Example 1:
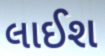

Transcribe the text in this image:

લાઈશ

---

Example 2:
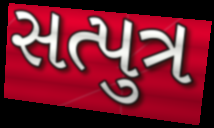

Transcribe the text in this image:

સત્પુત્ર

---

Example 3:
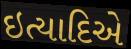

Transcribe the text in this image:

ઇત્યાદિએ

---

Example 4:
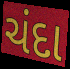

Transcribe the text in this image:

ચંદા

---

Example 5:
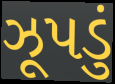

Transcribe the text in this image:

ઝૂપડું